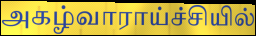
அகழ்வாராய்ச்சியில்